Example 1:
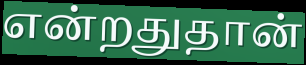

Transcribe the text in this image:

என்றதுதான்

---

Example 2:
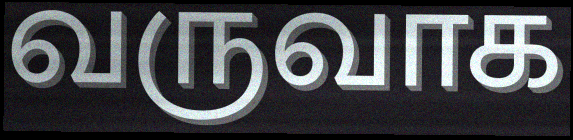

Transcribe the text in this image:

வருவாக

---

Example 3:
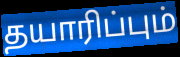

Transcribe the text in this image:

தயாரிப்பும்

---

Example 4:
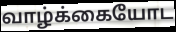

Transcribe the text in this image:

வாழ்க்கையோட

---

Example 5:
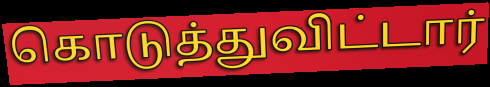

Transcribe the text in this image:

கொடுத்துவிட்டார்